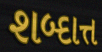
શબ્દાત્ત